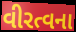
વીરત્વના